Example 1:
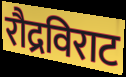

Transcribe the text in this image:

रौद्रविराट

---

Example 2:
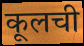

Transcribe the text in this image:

कूलची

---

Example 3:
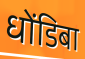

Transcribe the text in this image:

धोंडिबा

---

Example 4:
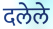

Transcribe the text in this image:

दलेले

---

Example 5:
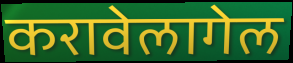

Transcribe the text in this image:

करावेलागेल